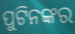
ପୁଟିନଙ୍କର